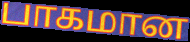
பாகமான